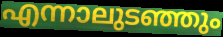
എന്നാലുടഞ്ഞും